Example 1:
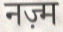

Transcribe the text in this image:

नज़्म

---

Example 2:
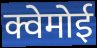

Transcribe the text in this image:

क्वेमोई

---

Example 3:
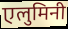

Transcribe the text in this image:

एलुमिनी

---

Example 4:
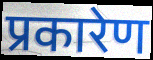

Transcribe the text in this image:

प्रकारेण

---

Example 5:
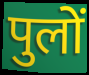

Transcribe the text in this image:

पुलों